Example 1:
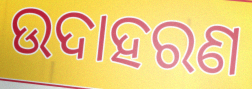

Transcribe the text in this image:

ଉଦାହରଣ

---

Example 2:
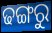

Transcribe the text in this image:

ଢଙ୍ଗରୁ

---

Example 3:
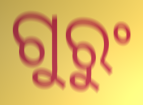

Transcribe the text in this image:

ଗୁରୁଂ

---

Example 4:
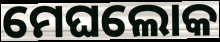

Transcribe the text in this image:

ମେଘଲୋକ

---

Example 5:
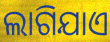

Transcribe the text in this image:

ଲାଗିଯାଏ